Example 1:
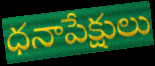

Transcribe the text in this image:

ధనాపేక్షులు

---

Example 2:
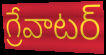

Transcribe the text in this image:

గ్రేవాటర్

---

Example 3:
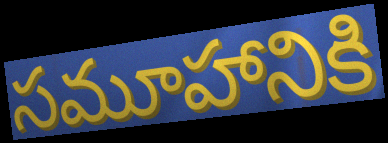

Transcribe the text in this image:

సమూహానికి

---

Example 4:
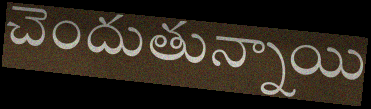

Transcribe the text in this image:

చెందుతున్నాయి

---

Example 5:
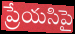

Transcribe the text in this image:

ప్రేయసిపై